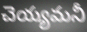
చెయ్యమనీ